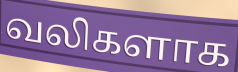
வலிகளாக